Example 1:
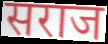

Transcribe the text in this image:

सराज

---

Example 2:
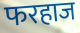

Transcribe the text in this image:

फरहाज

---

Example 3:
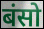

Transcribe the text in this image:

बंसो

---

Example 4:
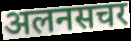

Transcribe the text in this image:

अलनसचर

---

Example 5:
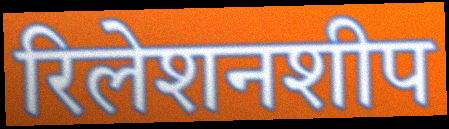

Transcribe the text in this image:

रिलेशनशीप